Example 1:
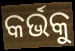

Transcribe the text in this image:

କର୍ଭକୁ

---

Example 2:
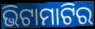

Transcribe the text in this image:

ଭିଟାମାଟିର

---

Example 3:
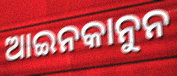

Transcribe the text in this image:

ଆଇନକାନୁନ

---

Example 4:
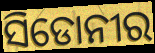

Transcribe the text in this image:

ସିଡୋନୀର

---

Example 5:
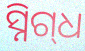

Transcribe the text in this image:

ସ୍ନିଗ୍‍ଧ